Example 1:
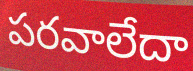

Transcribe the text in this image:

పరవాలేదా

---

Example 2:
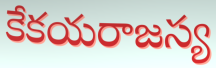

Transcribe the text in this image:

కేకయరాజస్య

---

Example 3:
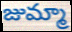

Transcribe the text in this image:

జుమ్మా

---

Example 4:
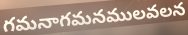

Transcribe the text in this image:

గమనాగమనములవలన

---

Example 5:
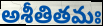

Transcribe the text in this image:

అశీతితమః